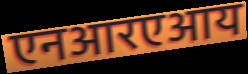
एनआरएआय